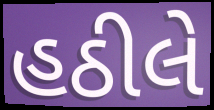
હઠીલે